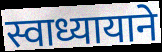
स्वाध्यायाने